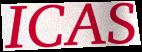
ICAS